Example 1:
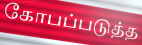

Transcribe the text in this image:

கோபப்படுத்த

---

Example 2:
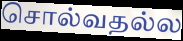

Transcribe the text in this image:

சொல்வதல்ல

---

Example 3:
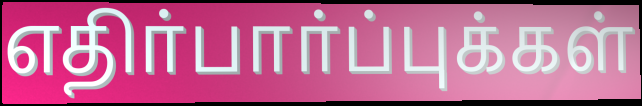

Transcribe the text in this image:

எதிர்பார்ப்புக்கள்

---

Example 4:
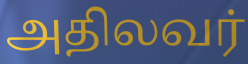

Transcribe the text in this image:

அதிலவர்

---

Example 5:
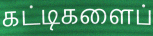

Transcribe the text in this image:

கட்டிகளைப்